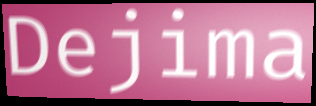
Dejima